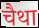
चैथा